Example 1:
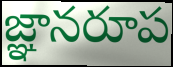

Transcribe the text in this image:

జ్ఞానరూప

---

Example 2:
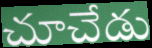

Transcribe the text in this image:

చూచేడు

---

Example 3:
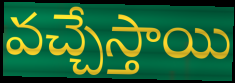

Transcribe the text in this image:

వచ్చేస్తాయి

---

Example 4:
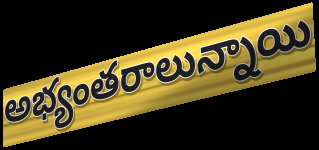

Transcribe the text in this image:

అభ్యంతరాలున్నాయి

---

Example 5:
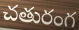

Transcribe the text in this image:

చతురంగ